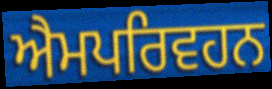
ਐਮਪਰਿਵਹਨ